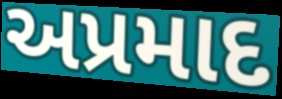
અપ્રમાદ